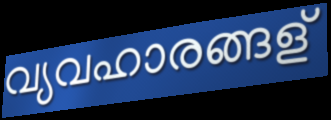
വ്യവഹാരങ്ങള്